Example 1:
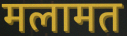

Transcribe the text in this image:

मलामत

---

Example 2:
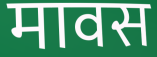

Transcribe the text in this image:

मावस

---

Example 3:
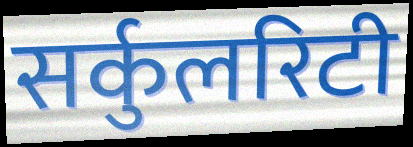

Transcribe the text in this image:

सर्कुलरिटी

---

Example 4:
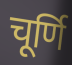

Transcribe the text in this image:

चूर्णि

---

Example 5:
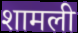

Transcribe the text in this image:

शामली